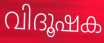
വിദൂഷക